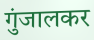
गुंजालकर